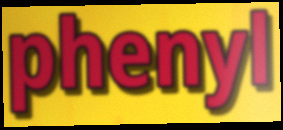
phenyl